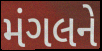
મંગલને